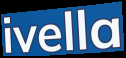
ivella